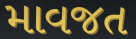
માવજત